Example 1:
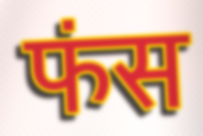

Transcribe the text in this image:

फंस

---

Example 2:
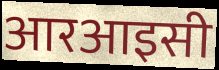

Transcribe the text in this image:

आरआइसी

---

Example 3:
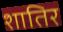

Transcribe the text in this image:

शातिर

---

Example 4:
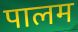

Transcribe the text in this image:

पालम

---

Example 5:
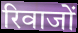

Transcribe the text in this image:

रिवाजों